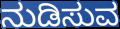
ನುಡಿಸುವ